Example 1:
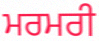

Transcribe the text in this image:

ਮਰਮਰੀ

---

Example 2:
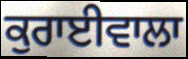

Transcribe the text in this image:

ਕੁਰਾਈਵਾਲਾ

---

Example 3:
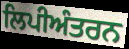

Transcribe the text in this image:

ਲਿਪੀਅੰਤਰਨ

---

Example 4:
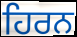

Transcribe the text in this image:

ਹਿਰਨ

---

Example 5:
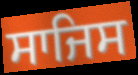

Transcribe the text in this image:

ਸਾਜਿਸ